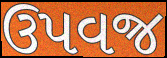
ઉપવજ્ર